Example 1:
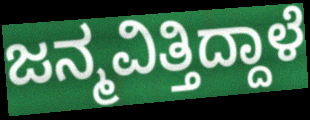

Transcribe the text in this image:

ಜನ್ಮವಿತ್ತಿದ್ದಾಳೆ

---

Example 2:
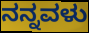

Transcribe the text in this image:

ನನ್ನವಳು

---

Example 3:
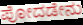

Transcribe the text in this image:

ಪೋದಡೇನು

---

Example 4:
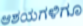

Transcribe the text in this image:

ಆಶಯಗಳಿಗೂ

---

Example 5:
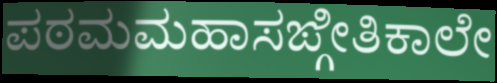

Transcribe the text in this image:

ಪಠಮಮಹಾಸಙ್ಗೀತಿಕಾಲೇ